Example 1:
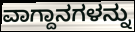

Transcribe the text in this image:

ವಾಗ್ದಾನಗಳನ್ನು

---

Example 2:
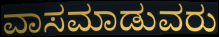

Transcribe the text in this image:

ವಾಸಮಾಡುವರು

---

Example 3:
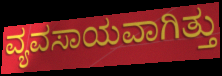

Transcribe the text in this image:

ವ್ಯವಸಾಯವಾಗಿತ್ತು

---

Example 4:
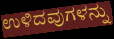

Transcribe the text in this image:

ಉಳಿದವುಗಳನ್ನು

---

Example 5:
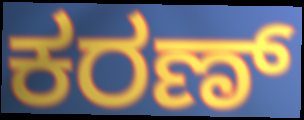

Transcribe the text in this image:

ಕರಣ್